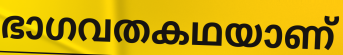
ഭാഗവതകഥയാണ്